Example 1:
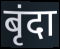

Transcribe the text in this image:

बृंदा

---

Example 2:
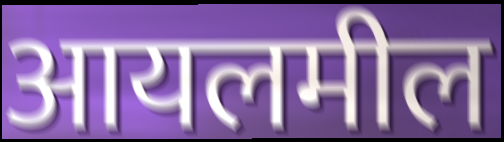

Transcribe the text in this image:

आयलमील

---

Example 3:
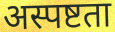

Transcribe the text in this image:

अस्पष्टता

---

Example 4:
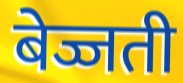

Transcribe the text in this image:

बेज्जती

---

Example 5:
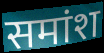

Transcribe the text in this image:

समांश